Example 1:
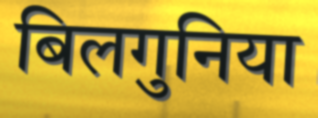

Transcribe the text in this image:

बिलगुनिया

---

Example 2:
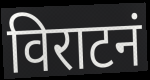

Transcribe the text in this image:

विराटनं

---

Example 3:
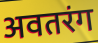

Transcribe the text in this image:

अवतरंग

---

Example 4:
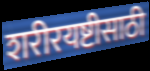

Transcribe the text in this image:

शरीरयष्टीसाठी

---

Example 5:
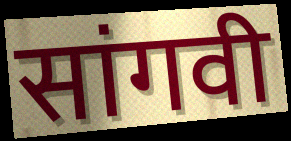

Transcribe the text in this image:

सांगवी